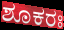
ಶೂಕರಃ